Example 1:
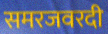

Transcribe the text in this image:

समरजवरदी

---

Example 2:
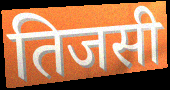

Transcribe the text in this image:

तिजसी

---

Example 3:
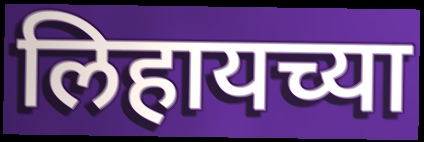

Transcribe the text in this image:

लिहायच्या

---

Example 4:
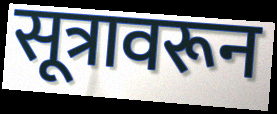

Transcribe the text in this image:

सूत्रावरून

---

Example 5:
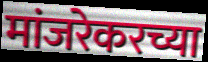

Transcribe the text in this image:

मांजरेकरच्या